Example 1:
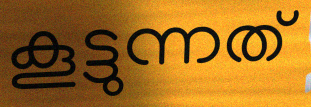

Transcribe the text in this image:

കൂട്ടുന്നത്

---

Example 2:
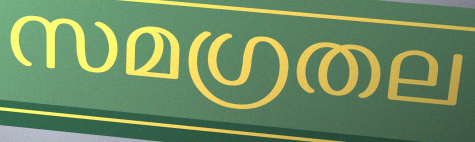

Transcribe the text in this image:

സമഗ്രതല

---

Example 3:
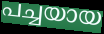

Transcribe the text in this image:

പച്ചയായ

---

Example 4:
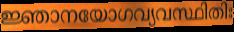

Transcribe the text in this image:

ജ്ഞാനയോഗവ്യവസ്ഥിതിഃ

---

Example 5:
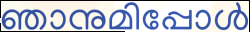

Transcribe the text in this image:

ഞാനുമിപ്പോൾ